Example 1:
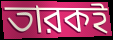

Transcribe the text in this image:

তারকই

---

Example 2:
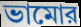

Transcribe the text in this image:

ভামোর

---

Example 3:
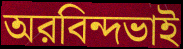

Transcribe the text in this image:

অরবিন্দভাই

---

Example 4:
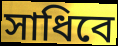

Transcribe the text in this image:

সাধিবে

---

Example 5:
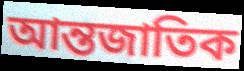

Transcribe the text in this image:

আন্তজাতিক